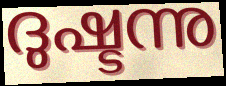
ദുഷ്ടന്നു